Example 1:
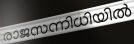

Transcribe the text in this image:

രാജസന്നിധിയിൽ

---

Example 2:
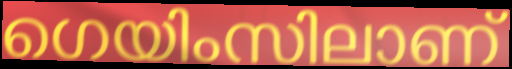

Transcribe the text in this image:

ഗെയിംസിലാണ്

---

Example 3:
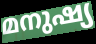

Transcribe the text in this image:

മനുഷ്യ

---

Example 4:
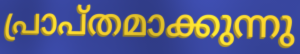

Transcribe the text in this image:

പ്രാപ്തമാക്കുന്നു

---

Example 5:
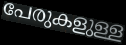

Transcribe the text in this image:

പേരുകളുള്ള